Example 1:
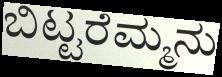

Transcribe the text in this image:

ಬಿಟ್ಟರೆಮ್ಮನು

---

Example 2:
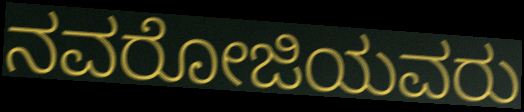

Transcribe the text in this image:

ನವರೋಜಿಯವರು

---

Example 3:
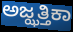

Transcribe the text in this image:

ಅಜ್ಝತ್ತಿಕಾ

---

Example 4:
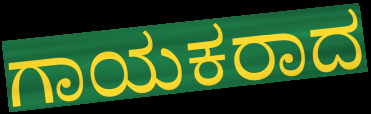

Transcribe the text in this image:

ಗಾಯಕರಾದ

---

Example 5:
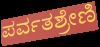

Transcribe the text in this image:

ಪರ್ವತಶ್ರೇಣಿ